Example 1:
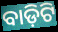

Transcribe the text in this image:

ବାଡ଼ିଟି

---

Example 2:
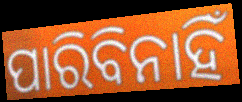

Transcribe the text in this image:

ପାରିବିନାହିଁ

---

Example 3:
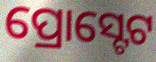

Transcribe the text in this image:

ପ୍ରୋସ୍ଟେଟ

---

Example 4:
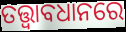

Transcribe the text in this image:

ତତ୍ତ୍ଵାବଧାନରେ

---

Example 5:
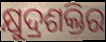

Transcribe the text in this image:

କ୍ଷୁଦ୍ରଶକ୍ତିର